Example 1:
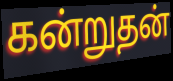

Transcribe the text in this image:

கன்றுதன்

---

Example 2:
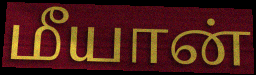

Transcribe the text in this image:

மீயான்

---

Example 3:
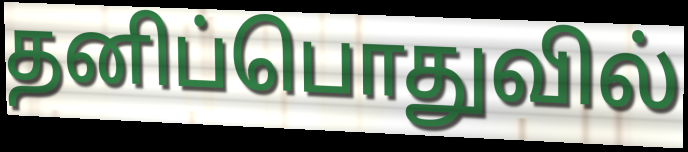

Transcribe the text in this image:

தனிப்பொதுவில்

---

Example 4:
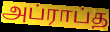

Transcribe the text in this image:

அப்ராப்த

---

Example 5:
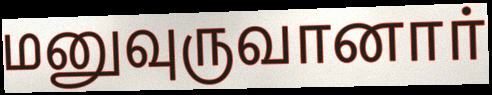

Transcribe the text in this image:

மனுவுருவானார்